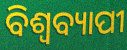
ବିଶ୍ଵବ୍ୟାପୀ